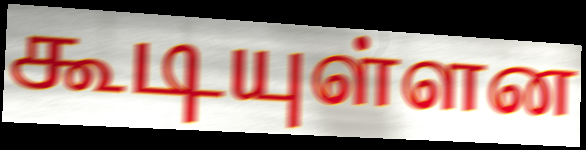
கூடியுள்ளன